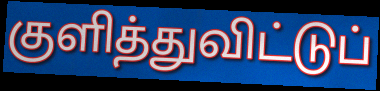
குளித்துவிட்டுப்